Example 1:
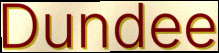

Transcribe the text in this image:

Dundee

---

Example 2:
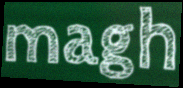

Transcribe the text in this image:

magh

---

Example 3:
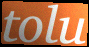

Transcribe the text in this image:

tolu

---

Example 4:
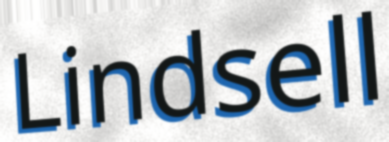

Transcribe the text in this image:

Lindsell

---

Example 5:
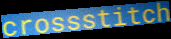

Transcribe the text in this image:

crossstitch